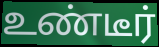
உண்டீர்